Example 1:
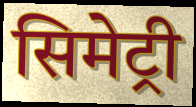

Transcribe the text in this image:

सिमेट्री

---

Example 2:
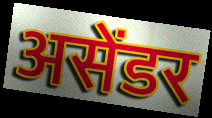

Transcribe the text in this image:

असेंडर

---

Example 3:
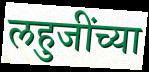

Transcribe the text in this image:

लहुजींच्या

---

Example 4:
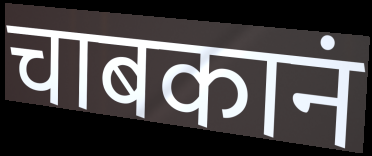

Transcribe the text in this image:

चाबकानं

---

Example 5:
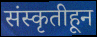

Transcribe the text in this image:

संस्कृतीहून